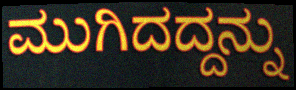
ಮುಗಿದದ್ದನ್ನು